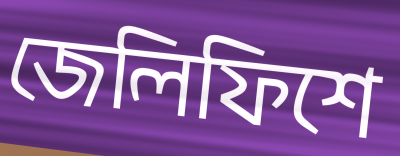
জেলিফিশে